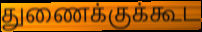
துணைக்குக்கூட